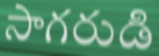
సాగరుడి